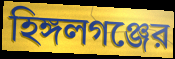
হিঙ্গলগঞ্জের